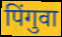
पिंगुवा